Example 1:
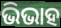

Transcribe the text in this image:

ଭିଭାହ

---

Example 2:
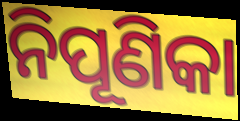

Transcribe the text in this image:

ନିପୂଣିକା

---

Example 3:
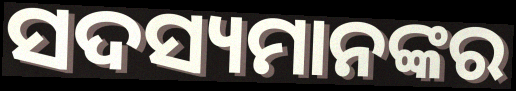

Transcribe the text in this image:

ସଦସ୍ୟମାନଙ୍କର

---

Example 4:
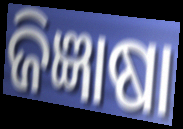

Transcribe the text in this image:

ଜିଜ୍ଞାଷା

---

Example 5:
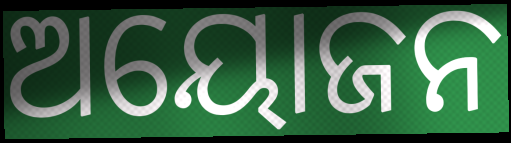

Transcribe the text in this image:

ଅୟୋଜନ